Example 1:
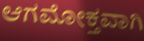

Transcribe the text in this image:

ಆಗಮೋಕ್ತವಾಗಿ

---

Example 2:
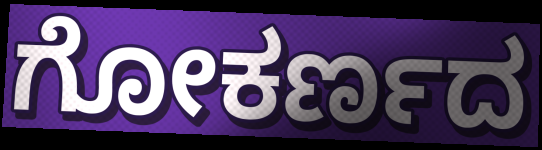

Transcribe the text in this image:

ಗೋಕರ್ಣದ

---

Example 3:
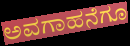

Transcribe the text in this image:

ಅವಗಾಹನೆಗೂ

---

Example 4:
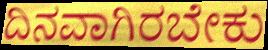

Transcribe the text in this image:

ದಿನವಾಗಿರಬೇಕು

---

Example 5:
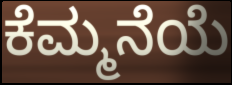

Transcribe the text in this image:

ಕೆಮ್ಮನೆಯೆ